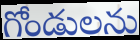
గోండులను